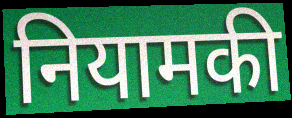
नियामकी